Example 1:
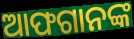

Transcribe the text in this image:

ଆଫଗାନଙ୍କ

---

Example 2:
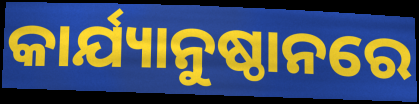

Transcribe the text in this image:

କାର୍ଯ୍ୟାନୁଷ୍ଠାନରେ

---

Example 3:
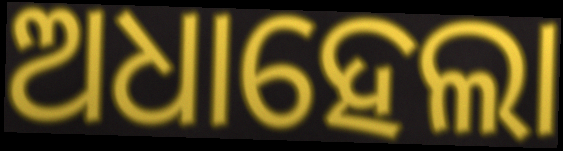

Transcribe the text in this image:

ଅଧାହେଲା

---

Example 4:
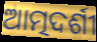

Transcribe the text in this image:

ଆତ୍ମଦର୍ଶୀ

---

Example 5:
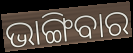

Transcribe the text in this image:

ଭାଙ୍ଗିବାର